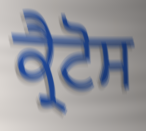
ਕ੍ਰੈਟੋਸ